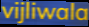
vijliwala